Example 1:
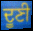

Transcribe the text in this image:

ਦੂਣੀ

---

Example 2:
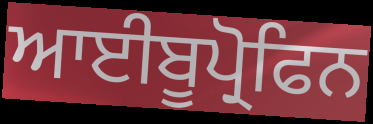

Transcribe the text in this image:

ਆਈਬੂਪ੍ਰੋਫਿਨ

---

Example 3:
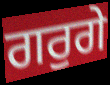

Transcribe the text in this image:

ਗਰੁਗੇ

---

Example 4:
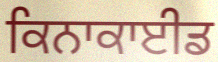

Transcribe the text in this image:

ਕਿਨਾਕਾਈਡ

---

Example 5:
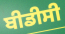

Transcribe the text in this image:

ਬੀਡੀਸੀ